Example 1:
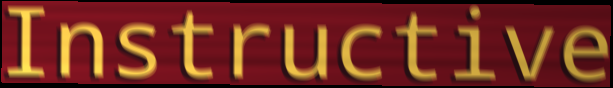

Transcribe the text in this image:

Instructive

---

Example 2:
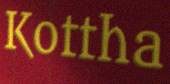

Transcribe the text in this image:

Kottha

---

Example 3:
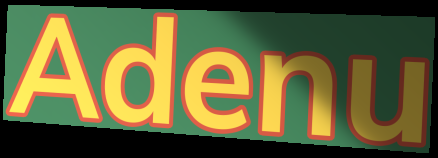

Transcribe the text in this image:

Adenu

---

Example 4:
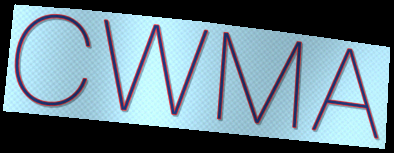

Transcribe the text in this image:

CWMA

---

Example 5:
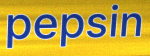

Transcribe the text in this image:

pepsin